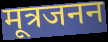
मूत्रजनन